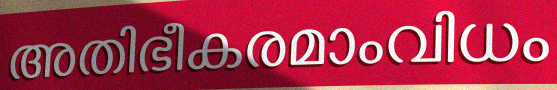
അതിഭീകരമാംവിധം